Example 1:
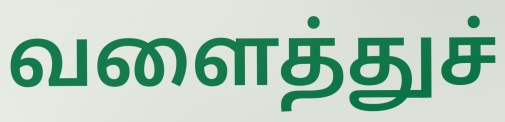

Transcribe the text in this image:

வளைத்துச்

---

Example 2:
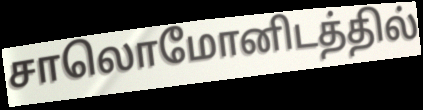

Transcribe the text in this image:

சாலொமோனிடத்தில்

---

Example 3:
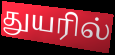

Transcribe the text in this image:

துயரில்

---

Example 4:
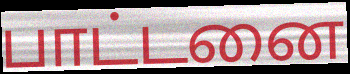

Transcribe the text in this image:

பாட்டனை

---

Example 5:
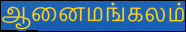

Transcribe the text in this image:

ஆனைமங்கலம்